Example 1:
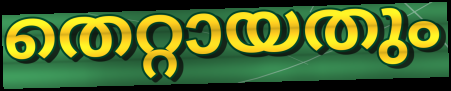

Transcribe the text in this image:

തെറ്റായതും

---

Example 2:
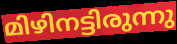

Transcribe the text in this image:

മിഴിനട്ടിരുന്നു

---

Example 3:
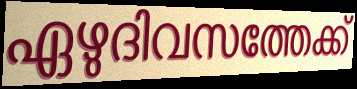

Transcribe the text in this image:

ഏഴുദിവസത്തേക്ക്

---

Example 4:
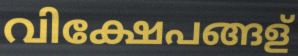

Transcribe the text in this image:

വിക്ഷേപങ്ങള്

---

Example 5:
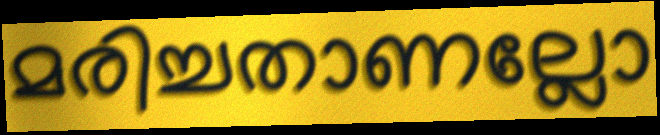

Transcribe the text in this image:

മരിച്ചതാണല്ലോ